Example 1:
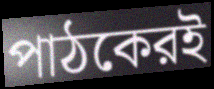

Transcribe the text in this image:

পাঠকেরই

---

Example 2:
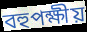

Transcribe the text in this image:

বহুপক্ষীয়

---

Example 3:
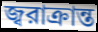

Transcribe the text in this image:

জ্বরাক্রান্ত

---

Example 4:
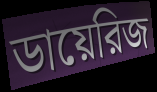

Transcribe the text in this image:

ডায়েরিজ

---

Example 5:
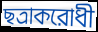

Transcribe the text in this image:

ছত্রাকরোধী